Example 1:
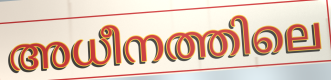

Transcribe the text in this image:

അധീനത്തിലെ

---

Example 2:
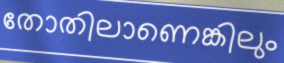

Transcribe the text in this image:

തോതിലാണെങ്കിലും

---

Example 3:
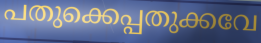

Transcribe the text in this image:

പതുക്കെപ്പതുക്കവേ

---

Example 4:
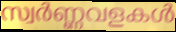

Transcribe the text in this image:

സ്വർണ്ണവളകൾ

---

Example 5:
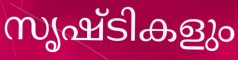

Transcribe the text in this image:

സൃഷ്ടികളും